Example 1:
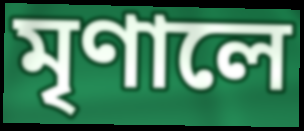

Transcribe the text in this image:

মৃণালে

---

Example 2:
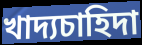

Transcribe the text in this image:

খাদ্যচাহিদা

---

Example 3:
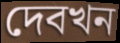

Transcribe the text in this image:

দেবখন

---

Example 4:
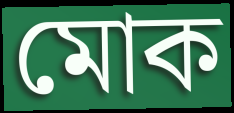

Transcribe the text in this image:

মোক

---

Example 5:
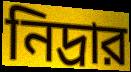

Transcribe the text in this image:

নিদ্রার